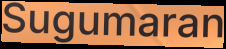
Sugumaran